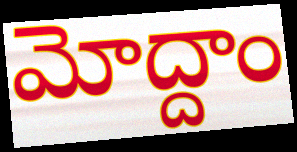
మోద్దాం